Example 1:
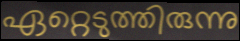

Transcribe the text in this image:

ഏറ്റെടുത്തിരുന്നു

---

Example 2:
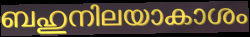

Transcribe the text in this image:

ബഹുനിലയാകാശം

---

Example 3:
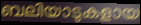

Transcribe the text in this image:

ബലിയാടുകളായ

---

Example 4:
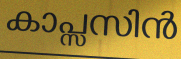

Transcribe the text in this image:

കാപ്സസിൻ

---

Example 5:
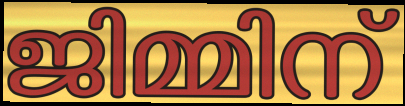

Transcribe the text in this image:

ജിമ്മിന്